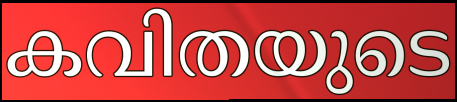
കവിതയുടെ